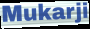
Mukarji